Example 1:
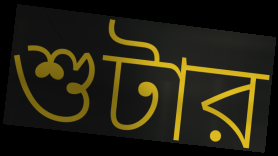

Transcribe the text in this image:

শুটার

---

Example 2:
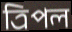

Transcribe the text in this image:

ত্রিপল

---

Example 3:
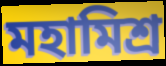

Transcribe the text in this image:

মহামিশ্র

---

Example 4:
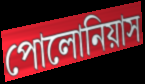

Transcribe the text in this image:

পোলোনিয়াস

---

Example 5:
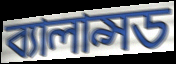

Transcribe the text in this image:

ব্যালান্সড